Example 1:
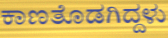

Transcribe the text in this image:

ಕಾಣತೊಡಗಿದ್ದಳು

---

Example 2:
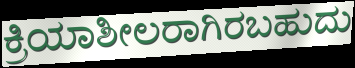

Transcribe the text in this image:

ಕ್ರಿಯಾಶೀಲರಾಗಿರಬಹುದು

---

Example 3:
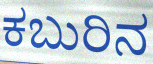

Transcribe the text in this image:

ಕಬುರಿನ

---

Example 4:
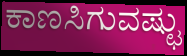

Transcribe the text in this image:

ಕಾಣಸಿಗುವಷ್ಟು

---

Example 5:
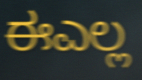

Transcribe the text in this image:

ಈಎಲ್ಲ